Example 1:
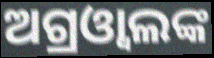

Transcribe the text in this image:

ଅଗ୍ରଓ୍ବାଲଙ୍କ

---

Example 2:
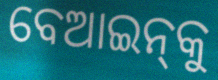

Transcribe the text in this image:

ବେଆଇନ୍‌କୁ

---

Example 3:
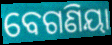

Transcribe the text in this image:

ବେଗଣିୟା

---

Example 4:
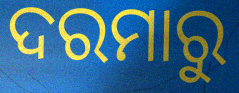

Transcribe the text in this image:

ଦରମାରୁ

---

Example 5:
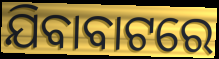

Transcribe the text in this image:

ଯିବାବାଟରେ